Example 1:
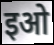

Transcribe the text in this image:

इओ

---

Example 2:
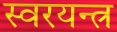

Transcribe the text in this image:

स्वरयन्त्र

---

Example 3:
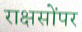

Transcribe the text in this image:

राक्षसोंपर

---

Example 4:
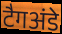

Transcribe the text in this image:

टैगअंडे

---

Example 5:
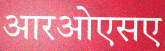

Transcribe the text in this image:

आरओएसए